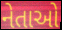
નેતાઓ